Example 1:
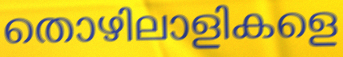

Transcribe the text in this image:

തൊഴിലാളികളെ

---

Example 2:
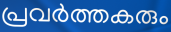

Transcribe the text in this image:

പ്രവർത്തകരും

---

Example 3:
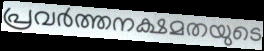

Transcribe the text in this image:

പ്രവർത്തനക്ഷമതയുടെ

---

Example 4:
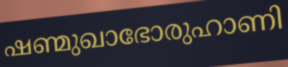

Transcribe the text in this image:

ഷണ്മുഖാഭോരുഹാണി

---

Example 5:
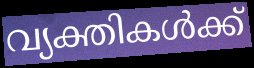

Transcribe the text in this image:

വ്യക്തികൾക്ക്